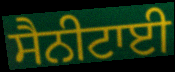
ਸੈਨੀਟਾਈ